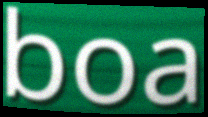
boa